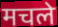
मचले